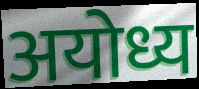
अयोध्य